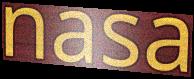
nasa